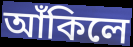
আঁকিলে